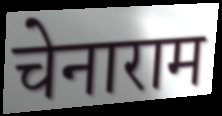
चेनाराम